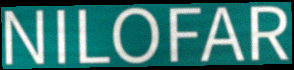
NILOFAR